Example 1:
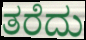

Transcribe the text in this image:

ತರೆದು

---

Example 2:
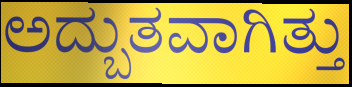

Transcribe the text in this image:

ಅದ್ಬುತವಾಗಿತ್ತು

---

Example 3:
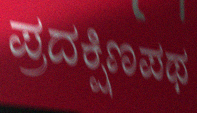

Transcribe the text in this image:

ಪ್ರದಕ್ಷಿಣಪಥ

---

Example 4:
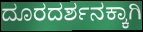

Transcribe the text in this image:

ದೂರದರ್ಶನಕ್ಕಾಗಿ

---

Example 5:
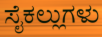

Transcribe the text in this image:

ಸೈಕಲ್ಲುಗಳು